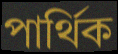
পার্থিক